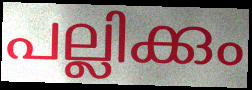
പല്ലിക്കും